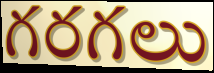
గరగలు